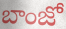
బాంజో